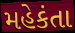
મહેકંતા